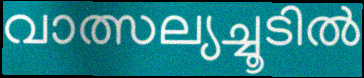
വാത്സല്യച്ചൂടിൽ